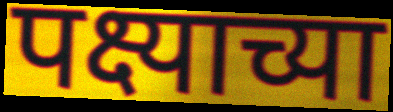
पक्ष्याच्या